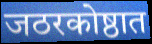
जठरकोष्ठात